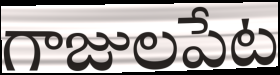
గాజులపేట